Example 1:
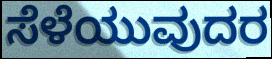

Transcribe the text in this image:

ಸೆಳೆಯುವುದರ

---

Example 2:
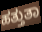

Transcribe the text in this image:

ಹತ್ತುತಾ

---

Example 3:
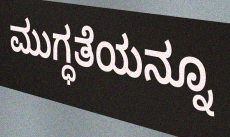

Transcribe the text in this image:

ಮುಗ್ಧತೆಯನ್ನೂ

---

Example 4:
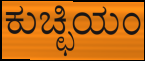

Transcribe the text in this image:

ಕುಚ್ಛಿಯಂ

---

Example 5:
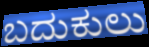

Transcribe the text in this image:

ಬದುಕುಲು